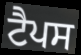
ਟੈਪਸ